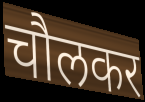
चौलकर